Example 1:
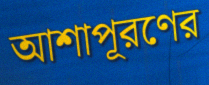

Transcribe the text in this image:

আশাপূরণের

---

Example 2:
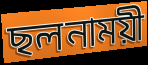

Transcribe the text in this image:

ছলনাময়ী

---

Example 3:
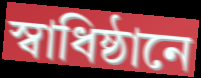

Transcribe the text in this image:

স্বাধিষ্ঠানে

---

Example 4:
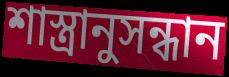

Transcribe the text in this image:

শাস্ত্রানুসন্ধান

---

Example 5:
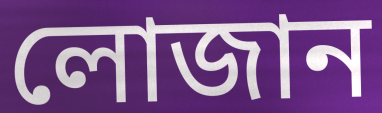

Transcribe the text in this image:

লোজান